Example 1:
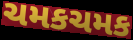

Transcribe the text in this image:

ચમકચમક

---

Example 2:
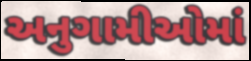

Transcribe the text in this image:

અનુગામીઓમાં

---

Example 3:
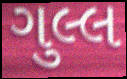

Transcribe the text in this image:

ગુલ્લ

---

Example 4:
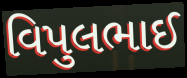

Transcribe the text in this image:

વિપુલભાઈ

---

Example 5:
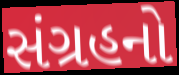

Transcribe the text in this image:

સંગ્રહનો